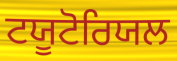
ਟਯੂਟੋਰਿਯਲ